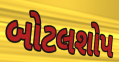
બોટલશોપ